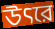
উৎরে